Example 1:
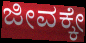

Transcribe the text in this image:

ಜೀವಕ್ಕೇ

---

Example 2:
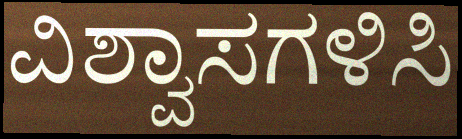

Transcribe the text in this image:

ವಿಶ್ವಾಸಗಳಿಸಿ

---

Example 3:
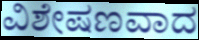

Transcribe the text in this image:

ವಿಶೇಷಣವಾದ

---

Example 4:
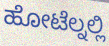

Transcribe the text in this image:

ಹೋಟೆಲ್ನಲ್ಲಿ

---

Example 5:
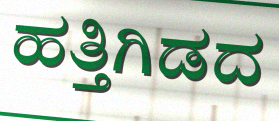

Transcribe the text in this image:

ಹತ್ತಿಗಿಡದ